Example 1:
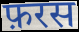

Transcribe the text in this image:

फ़रस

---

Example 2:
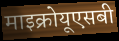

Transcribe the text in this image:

माइक्रोयूएसबी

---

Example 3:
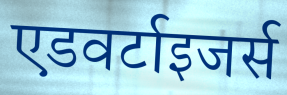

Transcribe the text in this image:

एडवर्टाइजर्स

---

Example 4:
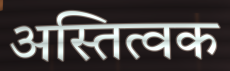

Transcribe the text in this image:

अस्तित्वक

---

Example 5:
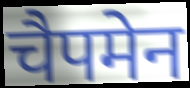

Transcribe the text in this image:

चैपमेन